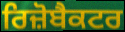
ਰਿਜ਼ੋਬੈਕਟਰ